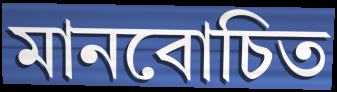
মানবোচিত